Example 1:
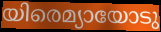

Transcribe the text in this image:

യിരെമ്യായോടു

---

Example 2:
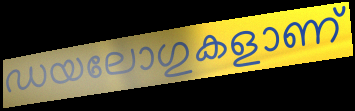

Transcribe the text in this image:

ഡയലോഗുകളാണ്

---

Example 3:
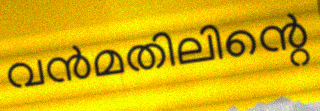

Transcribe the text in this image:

വൻമതിലിന്റെ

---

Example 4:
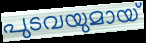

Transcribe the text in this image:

പുടവയുമായ്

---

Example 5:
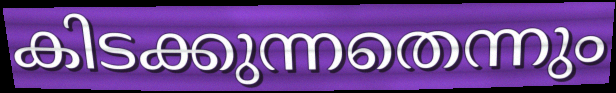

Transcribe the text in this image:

കിടക്കുന്നതെന്നും